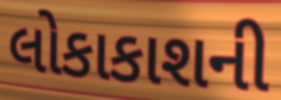
લોકાકાશની